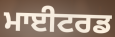
ਮਾਈਟਰਡ